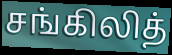
சங்கிலித்